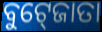
ବୁଟ୍‍ଜୋତା